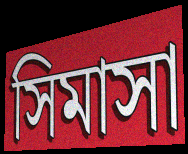
সিমাসা